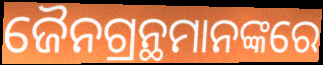
ଜୈନଗ୍ରନ୍ଥମାନଙ୍କରେ